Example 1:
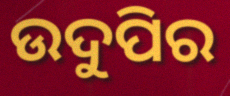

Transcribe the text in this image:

ଉଦୁପିର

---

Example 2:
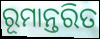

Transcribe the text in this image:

ରୂମାନ୍ତରିତ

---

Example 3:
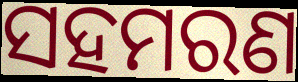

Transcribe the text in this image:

ସହମରଣ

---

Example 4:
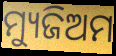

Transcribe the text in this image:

ମ୍ଯୁଜିଅମ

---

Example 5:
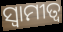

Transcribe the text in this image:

ସ୍ଵାମୀତ୍ବ